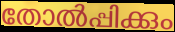
തോൽപ്പിക്കും